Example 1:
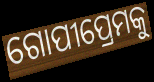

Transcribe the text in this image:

ଗୋପୀପ୍ରେମକୁ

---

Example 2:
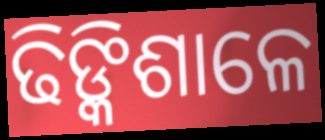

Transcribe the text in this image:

ଢିଙ୍କିଶାଳେ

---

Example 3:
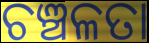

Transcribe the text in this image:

ଚଞ୍ଚଳତା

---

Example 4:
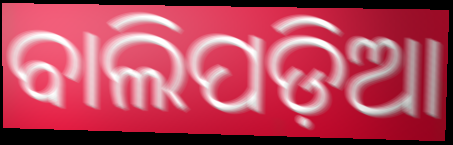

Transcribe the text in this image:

ବାଲିପଡ଼ିଆ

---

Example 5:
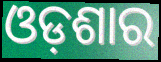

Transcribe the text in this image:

ଓଡ଼ଶାର